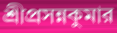
শ্রীপ্রসন্নকুমার